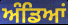
ਅੰਡਿਆਂ